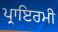
ਪ੍ਰਾਇਰਮੀ